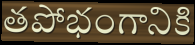
తపోభంగానికి